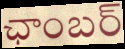
ఛాంబర్